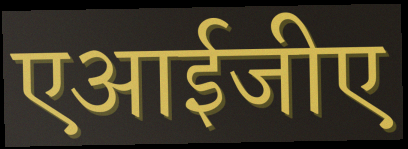
एआईजीए